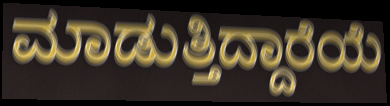
ಮಾಡುತ್ತಿದ್ದಾರೆಯೆ